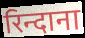
रिन्दाना